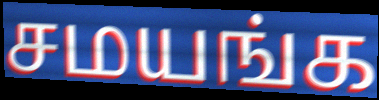
சமயங்க